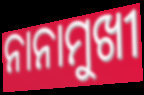
ନାନାମୁଖୀ